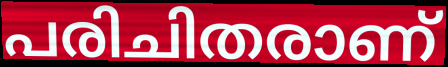
പരിചിതരാണ്